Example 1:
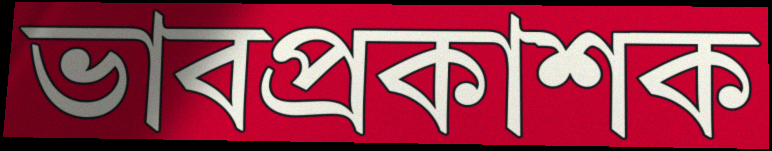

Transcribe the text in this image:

ভাবপ্রকাশক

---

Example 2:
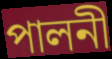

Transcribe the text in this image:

পালনী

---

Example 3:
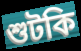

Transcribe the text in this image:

শুটকি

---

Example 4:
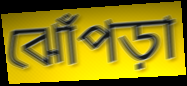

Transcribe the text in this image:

ঝোঁপড়া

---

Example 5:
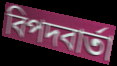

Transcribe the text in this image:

বিপদবার্তা